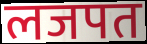
लजपत